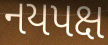
નયપક્ષ